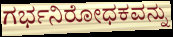
ಗರ್ಭನಿರೋಧಕವನ್ನು